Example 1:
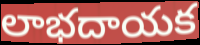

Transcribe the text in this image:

లాభదాయక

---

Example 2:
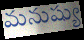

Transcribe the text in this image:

మనుష్యు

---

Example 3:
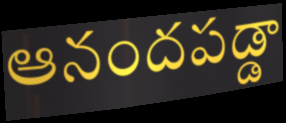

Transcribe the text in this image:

ఆనందపడ్డా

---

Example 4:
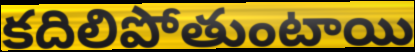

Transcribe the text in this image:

కదిలిపోతుంటాయి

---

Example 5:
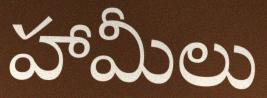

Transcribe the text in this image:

హామీలు